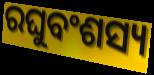
ରଘୁବଂଶସ୍ୟ